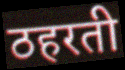
ठहरती